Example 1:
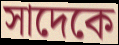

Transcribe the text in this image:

সাদেকে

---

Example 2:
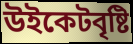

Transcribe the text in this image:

উইকেটবৃষ্টি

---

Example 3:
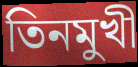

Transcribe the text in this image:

তিনমুখী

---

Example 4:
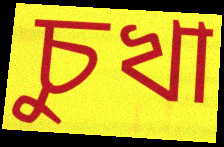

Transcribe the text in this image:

চুখা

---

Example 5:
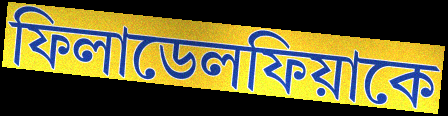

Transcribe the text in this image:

ফিলাডেলফিয়াকে